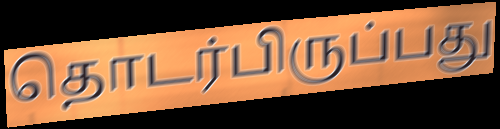
தொடர்பிருப்பது